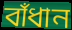
বাঁধান